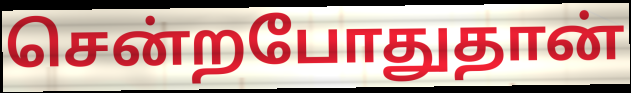
சென்றபோதுதான்